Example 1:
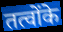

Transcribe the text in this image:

तत्वोंके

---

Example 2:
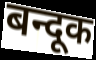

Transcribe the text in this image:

बन्दूक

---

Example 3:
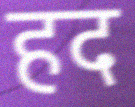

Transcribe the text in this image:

हद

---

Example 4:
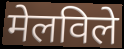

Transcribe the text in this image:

मेलविले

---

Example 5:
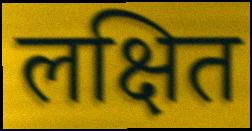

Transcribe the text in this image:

लक्षित